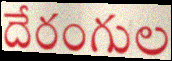
దేరంగుల